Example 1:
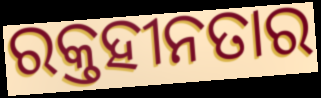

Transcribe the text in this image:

ରକ୍ତହୀନତାର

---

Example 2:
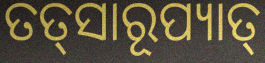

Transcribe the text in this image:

ତତ୍‌ସାରୂପ୍ୟାତ୍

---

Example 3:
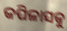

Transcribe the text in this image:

କପିଳାସକୁ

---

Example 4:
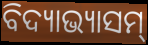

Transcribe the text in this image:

ବିଦ୍ୟାଭ୍ୟାସମ୍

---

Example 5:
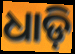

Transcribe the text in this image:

ଧାଡ଼ି